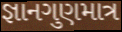
જ્ઞાનગુણમાત્ર